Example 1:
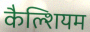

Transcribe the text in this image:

कैल्शियम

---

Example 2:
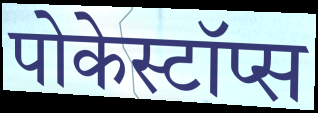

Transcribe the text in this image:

पोकेस्टॉप्स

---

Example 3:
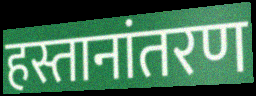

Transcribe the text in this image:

हस्तानांतरण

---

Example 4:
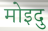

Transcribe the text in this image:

मोइदु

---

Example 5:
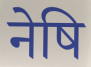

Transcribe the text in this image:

नेषि